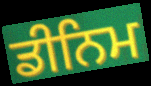
ਡੀਨਿਮ